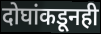
दोघांकडूनही